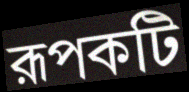
রূপকটি